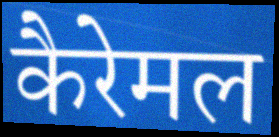
कैरेमल